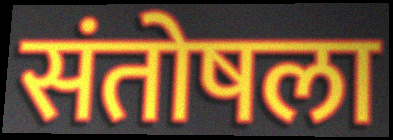
संतोषला